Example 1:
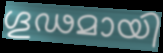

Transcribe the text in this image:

ഗൂഢമായി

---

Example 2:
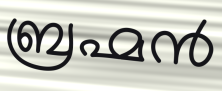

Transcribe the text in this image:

ബ്രഹ്മൻ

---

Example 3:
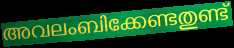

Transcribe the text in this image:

അവലംബിക്കേണ്ടതുണ്ട്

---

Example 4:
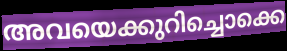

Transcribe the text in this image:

അവയെക്കുറിച്ചൊക്കെ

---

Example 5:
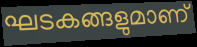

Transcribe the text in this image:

ഘടകങ്ങളുമാണ്